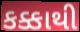
કક્કાથી